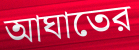
আঘাতের